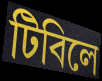
টিবিলে